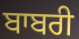
ਬਾਬਰੀ